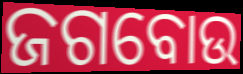
ଜଗବୋଉ